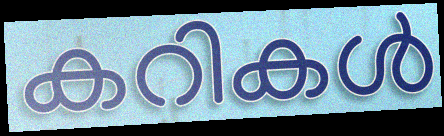
കറികൾ